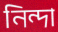
নিন্দা